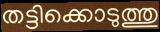
തട്ടിക്കൊടുത്തു